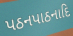
પઠનપાઠનાદિ